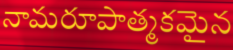
నామరూపాత్మకమైన